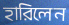
হারিলেন